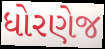
ધોરણેજ